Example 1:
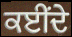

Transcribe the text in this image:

ਕਈਂਦੇ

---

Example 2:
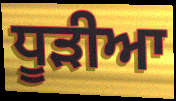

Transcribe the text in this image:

ਧੂੜੀਆ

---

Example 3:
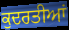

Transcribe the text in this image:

ਕੁਦਰਤੀਆਂ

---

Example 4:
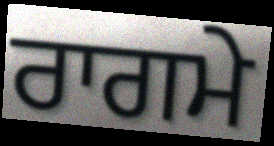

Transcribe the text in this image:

ਰਾਗਮੇ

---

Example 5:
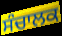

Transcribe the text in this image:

ਸੰਚਾਲਕ